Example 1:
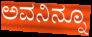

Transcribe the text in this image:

ಅವನಿನ್ನೂ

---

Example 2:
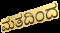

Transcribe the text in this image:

ಮತದಿಂದ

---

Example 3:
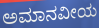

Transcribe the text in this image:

ಅಮಾನವೀಯ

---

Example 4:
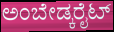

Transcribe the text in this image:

ಅಂಬೇಡ್ಕರೈಟ್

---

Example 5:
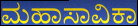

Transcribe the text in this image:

ಮಹಾಸಾವಿಕಾ